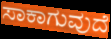
ಸಾಕಾಗುವುದೆ